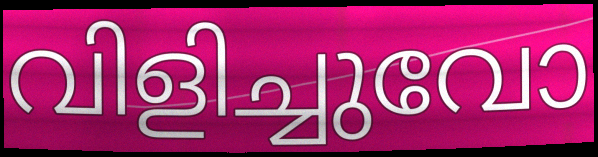
വിളിച്ചുവോ